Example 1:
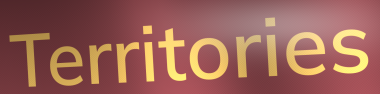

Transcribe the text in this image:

Territories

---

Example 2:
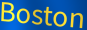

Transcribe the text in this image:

Boston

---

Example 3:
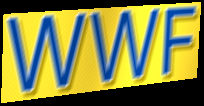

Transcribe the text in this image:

WWF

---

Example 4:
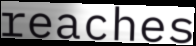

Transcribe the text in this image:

reaches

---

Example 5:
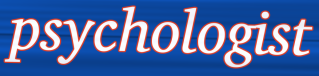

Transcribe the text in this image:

psychologist